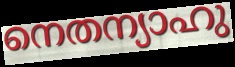
നെതന്യാഹു